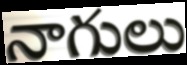
నాగులు